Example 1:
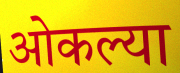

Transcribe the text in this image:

ओकल्या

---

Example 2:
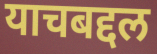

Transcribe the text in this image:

याचबद्दल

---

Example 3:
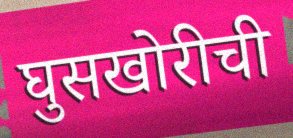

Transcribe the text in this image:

घुसखोरीची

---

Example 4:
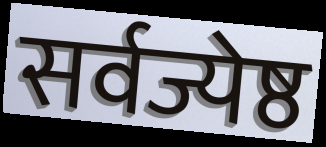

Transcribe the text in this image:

सर्वज्येष्ठ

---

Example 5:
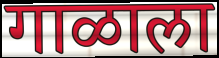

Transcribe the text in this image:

गाळाला